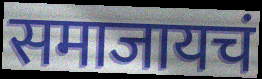
समाजायचं